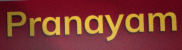
Pranayam